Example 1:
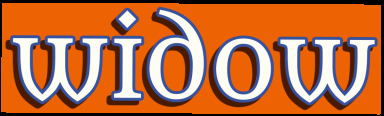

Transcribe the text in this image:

widow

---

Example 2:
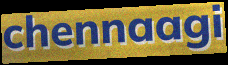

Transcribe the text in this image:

chennaagi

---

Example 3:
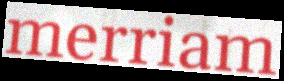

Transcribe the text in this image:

merriam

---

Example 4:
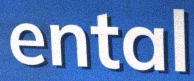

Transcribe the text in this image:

ental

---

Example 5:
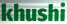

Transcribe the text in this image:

khushi